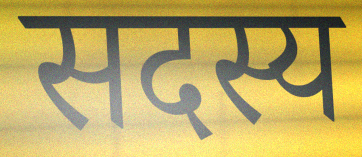
सदस्य